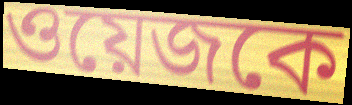
ওয়েজকে